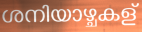
ശനിയാഴ്ചകള്